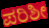
ಪರಿಶೀ